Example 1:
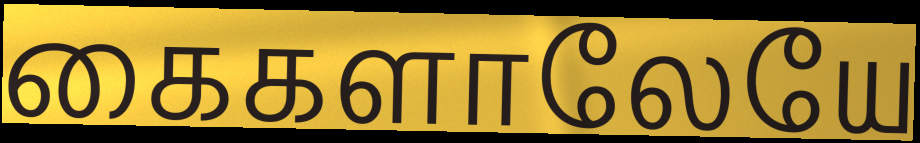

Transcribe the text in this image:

கைகளாலேயே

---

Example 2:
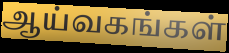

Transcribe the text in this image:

ஆய்வகங்கள்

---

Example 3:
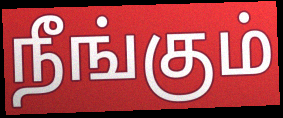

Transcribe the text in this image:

நீங்கும்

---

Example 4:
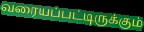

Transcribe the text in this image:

வரையப்பட்டிருக்கும்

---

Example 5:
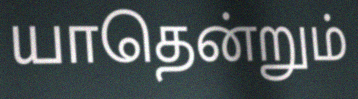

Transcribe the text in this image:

யாதென்றும்